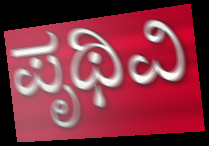
ಪೃಥಿವಿ